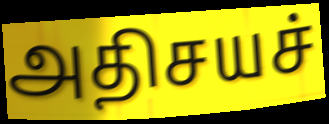
அதிசயச்